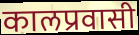
कालप्रवासी